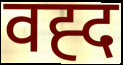
वह्द